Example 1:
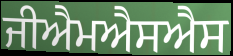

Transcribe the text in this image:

ਜੀਐਮਐਸਐਸ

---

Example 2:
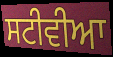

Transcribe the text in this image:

ਸਟੀਵੀਆ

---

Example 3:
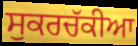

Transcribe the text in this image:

ਸੁਕਰਚੱਕੀਆ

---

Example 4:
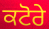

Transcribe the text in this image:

ਕਟੋਰੇ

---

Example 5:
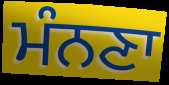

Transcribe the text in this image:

ਮੰਨਣਾ